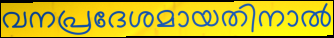
വനപ്രദേശമായതിനാൽ